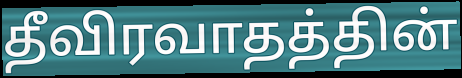
தீவிரவாதத்தின்